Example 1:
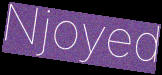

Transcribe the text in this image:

Njoyed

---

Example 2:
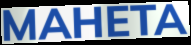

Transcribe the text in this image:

MAHETA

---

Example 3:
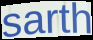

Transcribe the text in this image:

sarth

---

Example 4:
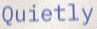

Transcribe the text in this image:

Quietly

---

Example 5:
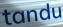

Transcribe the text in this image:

tandu